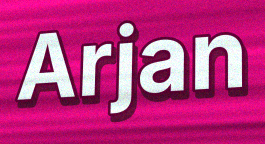
Arjan